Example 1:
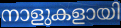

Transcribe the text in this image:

നാളുകളായി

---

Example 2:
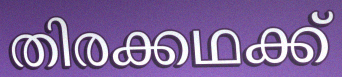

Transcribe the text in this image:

തിരക്കഥക്ക്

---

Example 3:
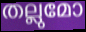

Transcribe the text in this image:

തല്ലുമോ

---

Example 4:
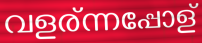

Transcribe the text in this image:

വളര്ന്നപ്പോള്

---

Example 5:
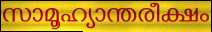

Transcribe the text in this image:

സാമൂഹ്യാന്തരീക്ഷം